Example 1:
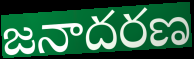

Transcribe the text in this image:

జనాదరణ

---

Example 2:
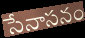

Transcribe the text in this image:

సేనాసనం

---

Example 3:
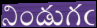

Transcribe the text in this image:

నిండుగఁ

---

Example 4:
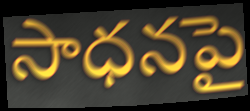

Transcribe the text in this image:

సాధనపై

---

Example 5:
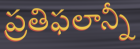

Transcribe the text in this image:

ప్రతిఫలాన్నీ